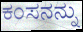
ಕಂಸನನ್ನು